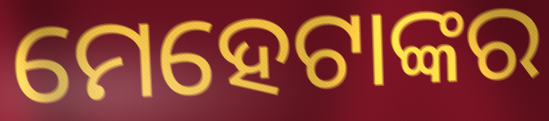
ମେହେଟାଙ୍କର